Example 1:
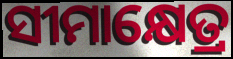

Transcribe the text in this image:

ସୀମାକ୍ଷେତ୍ର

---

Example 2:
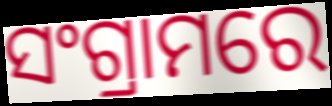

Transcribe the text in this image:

ସଂଗ୍ରାମରେ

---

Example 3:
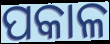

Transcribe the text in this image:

ପକାଳ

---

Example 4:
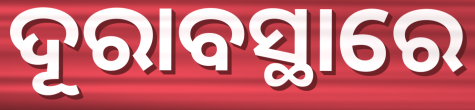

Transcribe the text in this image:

ଦୂରାବସ୍ଥାରେ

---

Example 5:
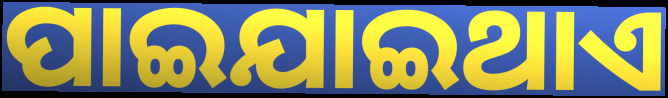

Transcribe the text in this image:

ପାଇଯାଇଥାଏ